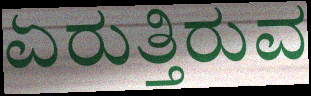
ಏರುತ್ತಿರುವ